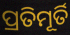
ପ୍ରତିମୂର୍ତି